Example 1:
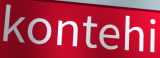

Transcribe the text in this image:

kontehi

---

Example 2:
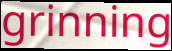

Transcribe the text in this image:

grinning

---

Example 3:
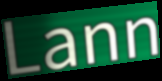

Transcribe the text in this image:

Lann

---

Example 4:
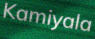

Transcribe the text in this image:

Kamiyala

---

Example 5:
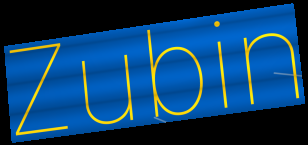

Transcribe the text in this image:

Zubin